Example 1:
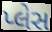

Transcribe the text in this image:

પ્લેસ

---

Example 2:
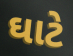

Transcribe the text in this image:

ઘાટે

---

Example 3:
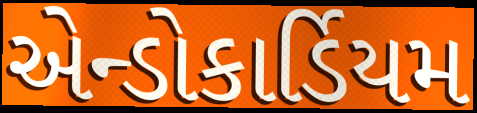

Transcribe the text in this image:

એન્ડોકાર્ડિયમ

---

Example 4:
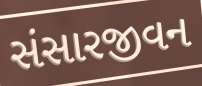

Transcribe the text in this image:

સંસારજીવન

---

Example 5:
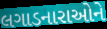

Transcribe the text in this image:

લગાડનારાઓને